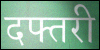
दफ्तरी